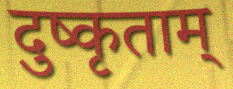
दुष्कृताम्